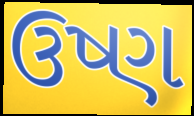
ઉષ્ણ